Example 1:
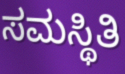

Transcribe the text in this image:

ಸಮಸ್ಥಿತಿ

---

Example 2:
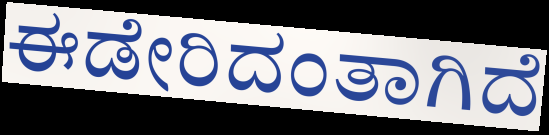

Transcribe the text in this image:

ಈಡೇರಿದಂತಾಗಿದೆ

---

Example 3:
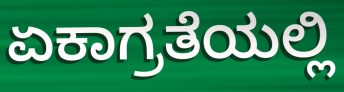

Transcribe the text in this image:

ಏಕಾಗ್ರತೆಯಲ್ಲಿ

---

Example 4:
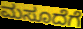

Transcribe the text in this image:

ಮಸೂದೆಗೆ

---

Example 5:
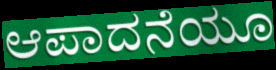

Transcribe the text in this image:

ಆಪಾದನೆಯೂ